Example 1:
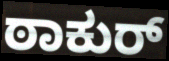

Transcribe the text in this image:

ಠಾಕುರ್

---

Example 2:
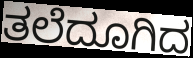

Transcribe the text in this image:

ತಲೆದೂಗಿದ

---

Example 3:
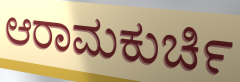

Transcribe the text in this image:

ಆರಾಮಕುರ್ಚಿ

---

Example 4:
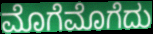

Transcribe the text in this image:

ಮೊಗೆಮೊಗೆದು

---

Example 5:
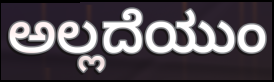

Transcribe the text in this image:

ಅಲ್ಲದೆಯುಂ